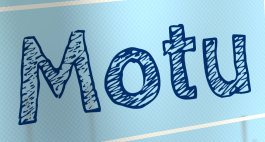
Motu